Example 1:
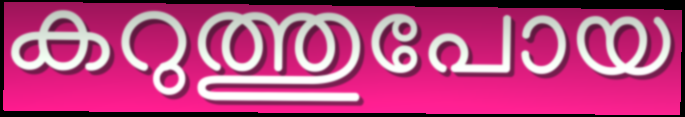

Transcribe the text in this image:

കറുത്തുപോയ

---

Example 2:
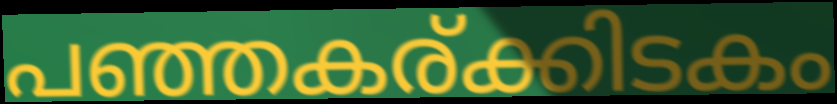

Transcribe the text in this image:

പഞ്ഞകര്ക്കിടകം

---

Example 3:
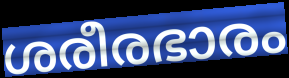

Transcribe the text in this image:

ശരീരഭാരം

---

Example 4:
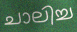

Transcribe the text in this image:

ചാലിച്ച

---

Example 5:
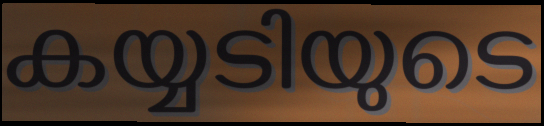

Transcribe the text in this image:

കയ്യടിയുടെ